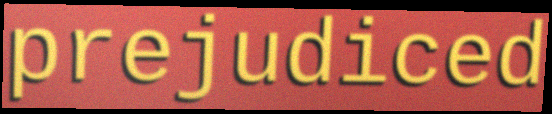
prejudiced